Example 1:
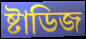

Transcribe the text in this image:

ষ্টাডিজ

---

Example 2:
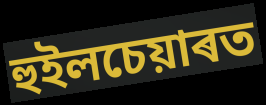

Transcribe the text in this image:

হুইলচেয়াৰত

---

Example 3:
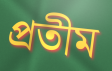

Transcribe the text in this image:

প্ৰতীম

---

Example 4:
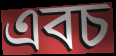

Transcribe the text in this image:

এবচ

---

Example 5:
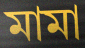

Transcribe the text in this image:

মামা